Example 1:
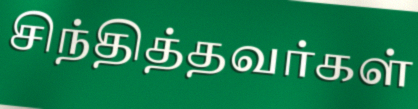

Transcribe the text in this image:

சிந்தித்தவர்கள்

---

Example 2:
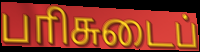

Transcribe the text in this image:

பரிசுடைப்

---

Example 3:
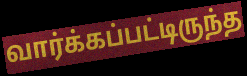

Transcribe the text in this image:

வார்க்கப்பட்டிருந்த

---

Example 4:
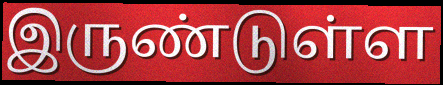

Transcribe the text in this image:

இருண்டுள்ள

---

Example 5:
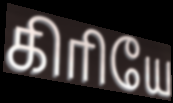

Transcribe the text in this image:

கிரியே